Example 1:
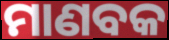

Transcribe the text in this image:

ମାଣବକ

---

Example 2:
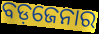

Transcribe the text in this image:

ବଡ଼ଜେନାର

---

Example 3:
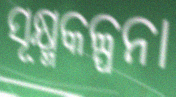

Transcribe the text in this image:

ସୂକ୍ଷ୍ମକଳ୍ପନା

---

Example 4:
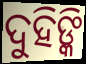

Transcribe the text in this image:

ଦୁହିଙ୍କି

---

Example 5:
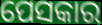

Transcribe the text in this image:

ପେସକାର